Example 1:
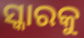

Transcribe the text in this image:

ସ୍କାରକୁ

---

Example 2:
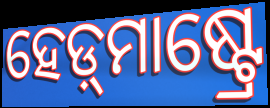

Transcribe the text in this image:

ହେଡ଼୍‌ମାଷ୍ଟ୍ରେ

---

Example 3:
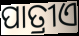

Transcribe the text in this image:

ପାତ୍ରୀଏ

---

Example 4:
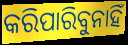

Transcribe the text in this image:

କରିପାରିବୁନାହିଁ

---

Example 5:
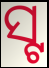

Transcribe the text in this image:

ସ୍ଟ